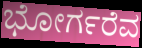
ಭೋರ್ಗರೆವ